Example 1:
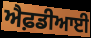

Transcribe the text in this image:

ਐਫ਼ਡੀਆਈ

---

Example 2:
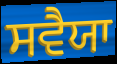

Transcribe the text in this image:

ਸਵੈਯਾ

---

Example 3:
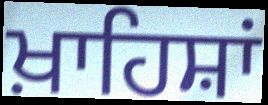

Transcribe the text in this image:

ਖ਼ਾਹਿਸ਼ਾਂ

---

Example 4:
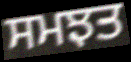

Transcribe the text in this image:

ਸਮਝਤ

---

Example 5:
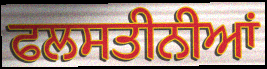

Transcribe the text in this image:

ਫਲਸਤੀਨੀਆਂ